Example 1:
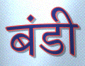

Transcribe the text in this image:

बंडी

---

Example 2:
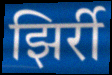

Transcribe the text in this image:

झिर्री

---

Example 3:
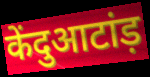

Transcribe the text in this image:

केंदुआटांड़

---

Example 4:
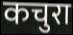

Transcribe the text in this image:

कचुरा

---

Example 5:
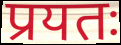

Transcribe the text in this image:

प्रयतः